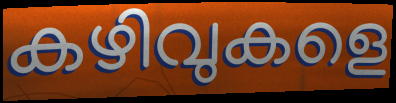
കഴിവുകളെ